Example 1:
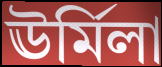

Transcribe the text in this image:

ঊর্মিলা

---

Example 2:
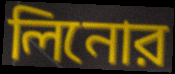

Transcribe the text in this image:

লিনোর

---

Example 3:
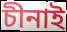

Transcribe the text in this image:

চীনাই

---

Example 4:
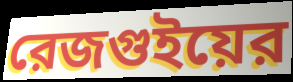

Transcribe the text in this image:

রেজগুইয়ের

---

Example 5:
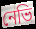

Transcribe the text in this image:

নেভি